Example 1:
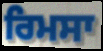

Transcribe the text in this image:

ਰਿਮਸਾ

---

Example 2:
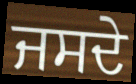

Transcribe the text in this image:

ਜਸਦੇ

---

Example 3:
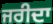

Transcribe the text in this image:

ਜਰੀਦਾ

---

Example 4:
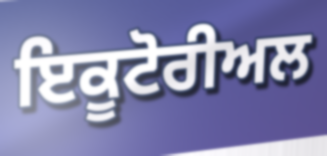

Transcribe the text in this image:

ਇਕੂਟੋਰੀਅਲ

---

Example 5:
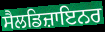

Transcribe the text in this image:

ਸੈਲਡਿਜ਼ਾਇਨਰ